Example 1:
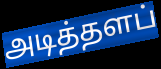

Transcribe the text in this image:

அடித்தளப்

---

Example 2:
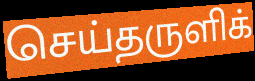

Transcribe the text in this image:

செய்தருளிக்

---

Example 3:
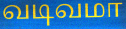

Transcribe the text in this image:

வடிவமா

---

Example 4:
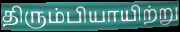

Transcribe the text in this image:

திரும்பியாயிற்று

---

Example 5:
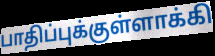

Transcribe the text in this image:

பாதிப்புக்குள்ளாக்கி